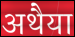
अथैया